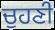
ਚੁਹਣੀ